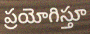
ప్రయోగిస్తూ